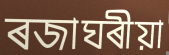
ৰজাঘৰীয়া